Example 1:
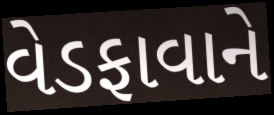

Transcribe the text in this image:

વેડફાવાને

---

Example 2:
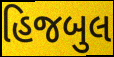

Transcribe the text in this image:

હિજબુલ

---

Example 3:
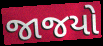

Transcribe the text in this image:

જાજયો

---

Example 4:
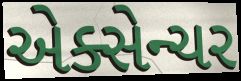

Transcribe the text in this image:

એક્સેન્ચર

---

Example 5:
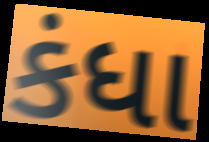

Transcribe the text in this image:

કંધા